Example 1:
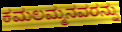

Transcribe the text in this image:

ಕಮಲಮ್ಮನವರನ್ನು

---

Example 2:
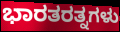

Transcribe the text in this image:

ಭಾರತರತ್ನಗಳು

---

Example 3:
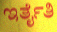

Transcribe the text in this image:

ಇರ್ತೈತಿ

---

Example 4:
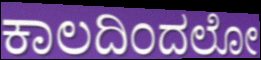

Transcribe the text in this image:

ಕಾಲದಿಂದಲೋ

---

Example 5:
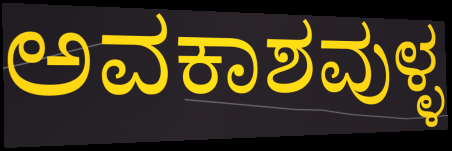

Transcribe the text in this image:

ಅವಕಾಶವುಳ್ಳ